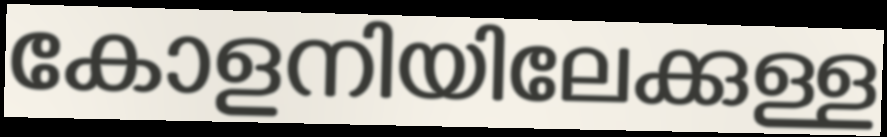
കോളനിയിലേക്കുള്ള